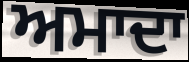
ਅਮਾਦਾ